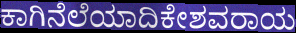
ಕಾಗಿನೆಲೆಯಾದಿಕೇಶವರಾಯ